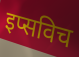
इप्सविच